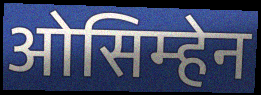
ओसिम्हेन